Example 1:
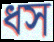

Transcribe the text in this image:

ধস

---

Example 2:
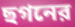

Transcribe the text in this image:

ছগনের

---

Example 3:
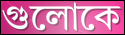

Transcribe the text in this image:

গুলোকে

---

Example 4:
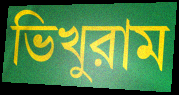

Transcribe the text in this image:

ভিখুরাম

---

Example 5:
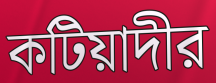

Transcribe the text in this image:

কটিয়াদীর